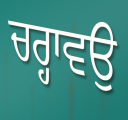
ਚਰ੍ਹਾਵਉ